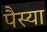
पैस्या